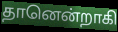
தானென்றாகி